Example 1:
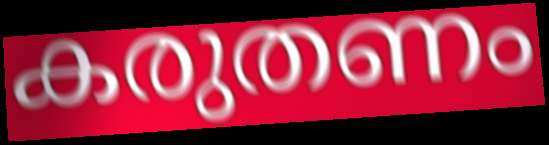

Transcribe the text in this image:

കരുതണം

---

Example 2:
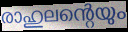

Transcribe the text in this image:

രാഹുലന്റെയും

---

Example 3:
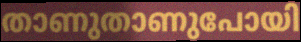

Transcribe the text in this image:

താണുതാണുപോയി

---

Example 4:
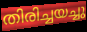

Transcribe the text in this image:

തിരിച്ചയച്ചു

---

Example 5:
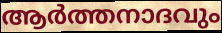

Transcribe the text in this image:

ആർത്തനാദവും